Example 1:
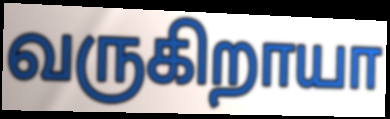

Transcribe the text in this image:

வருகிறாயா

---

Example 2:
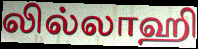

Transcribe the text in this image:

லில்லாஹி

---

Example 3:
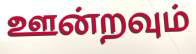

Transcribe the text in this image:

ஊன்றவும்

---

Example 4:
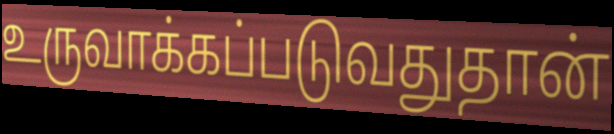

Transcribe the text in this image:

உருவாக்கப்படுவதுதான்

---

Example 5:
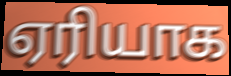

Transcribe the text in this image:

ஏரியாக